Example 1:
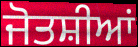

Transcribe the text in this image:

ਜੋਤਸ਼ੀਆਂ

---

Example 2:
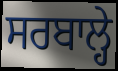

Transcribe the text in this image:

ਸਰਬਾਲ੍ਹੇ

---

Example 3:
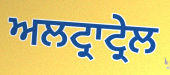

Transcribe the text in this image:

ਅਲਟ੍ਰਾਟ੍ਰੇਲ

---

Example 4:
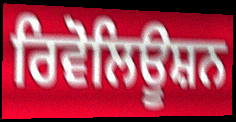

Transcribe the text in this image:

ਰਿਵੋਲਿਊਸ਼ਨ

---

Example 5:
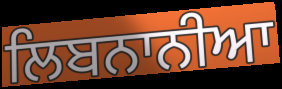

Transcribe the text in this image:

ਲਿਬਨਾਨੀਆ